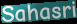
Sahasri